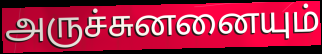
அருச்சுனனையும்